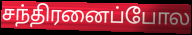
சந்திரனைப்போல